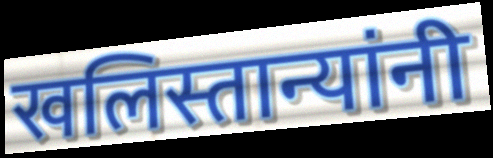
खलिस्तान्यांनी